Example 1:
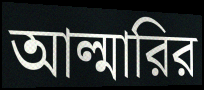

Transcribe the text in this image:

আল্মারির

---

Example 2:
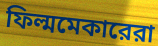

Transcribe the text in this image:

ফিল্মমেকারেরা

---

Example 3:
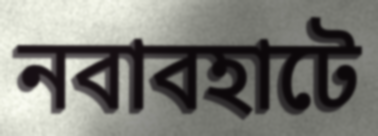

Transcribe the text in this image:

নবাবহাটে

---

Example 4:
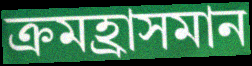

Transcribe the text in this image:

ক্রমহ্রাসমান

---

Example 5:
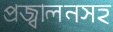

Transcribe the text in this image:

প্রজ্বালনসহ